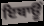
ਇਥਾਊਂ